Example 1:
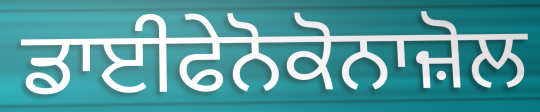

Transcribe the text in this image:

ਡਾਈਫੇਨੋਕੋਨਾਜ਼ੋਲ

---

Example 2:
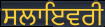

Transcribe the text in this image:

ਸਲਾਇਵਰੀ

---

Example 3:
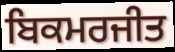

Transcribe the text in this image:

ਬਿਕਮਰਜੀਤ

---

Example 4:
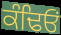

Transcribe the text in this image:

ਕੰਢਿਓਂ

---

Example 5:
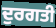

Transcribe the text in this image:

ਦੁਰਗਤੀ